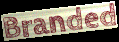
Branded